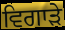
ਵਿਗਾੜੇ